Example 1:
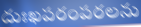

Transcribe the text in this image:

దుఃఖపరంపరలను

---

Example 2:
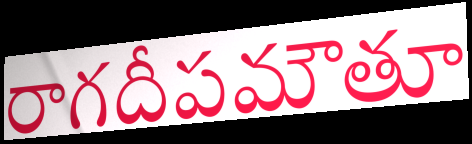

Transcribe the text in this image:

రాగదీపమౌతూ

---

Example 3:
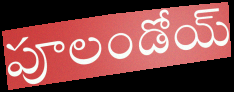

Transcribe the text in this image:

పూలండోయ్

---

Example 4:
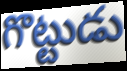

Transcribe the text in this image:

గొట్టుడు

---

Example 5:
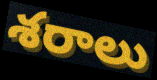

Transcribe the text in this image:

శరాలు